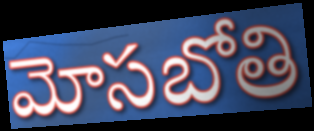
మోసబోతి